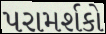
પરામર્શકો